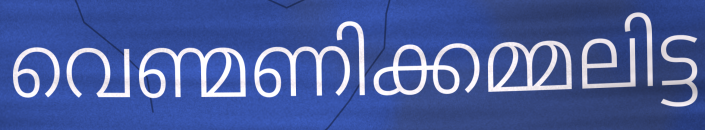
വെണ്മണിക്കമ്മലിട്ട